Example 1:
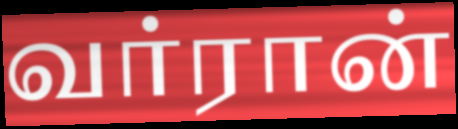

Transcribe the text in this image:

வர்ரான்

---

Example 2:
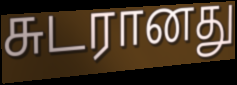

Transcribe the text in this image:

சுடரானது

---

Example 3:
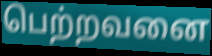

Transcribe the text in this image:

பெற்றவனை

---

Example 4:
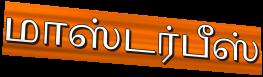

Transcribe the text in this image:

மாஸ்டர்பீஸ்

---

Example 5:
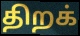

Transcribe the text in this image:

திறக்